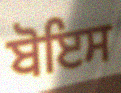
ਬੋਇਸ